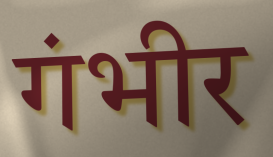
गंभीर